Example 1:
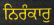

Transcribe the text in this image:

ਨਿਰੰਕਾਰੁ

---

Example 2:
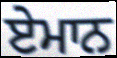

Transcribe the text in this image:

ਏਮਾਨ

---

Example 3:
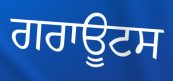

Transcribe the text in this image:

ਗਰਾਊਟਸ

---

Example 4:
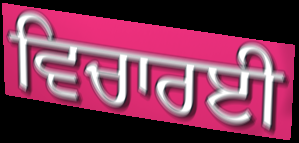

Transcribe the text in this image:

ਵਿਚਾਰਈ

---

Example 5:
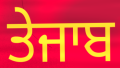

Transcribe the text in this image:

ਤੇਜਾਬ